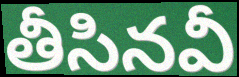
తీసినవీ